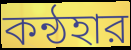
কন্ঠহার